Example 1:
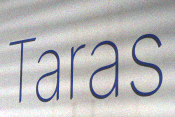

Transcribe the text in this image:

Taras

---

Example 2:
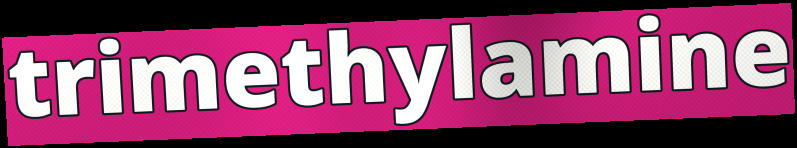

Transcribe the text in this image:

trimethylamine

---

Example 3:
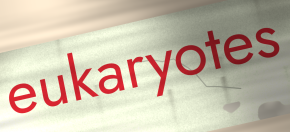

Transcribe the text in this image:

eukaryotes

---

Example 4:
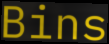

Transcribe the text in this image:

Bins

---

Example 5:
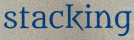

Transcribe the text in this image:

stacking